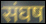
संघष